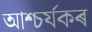
আশ্চৰ্যকৰ